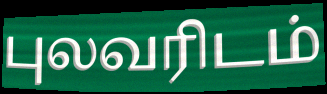
புலவரிடம்